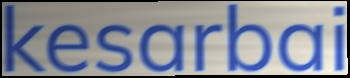
kesarbai